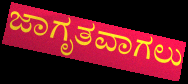
ಜಾಗೃತವಾಗಲು